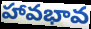
హావభావ